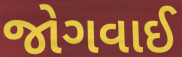
જોગવાઈ